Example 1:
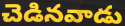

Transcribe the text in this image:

చెడినవాడు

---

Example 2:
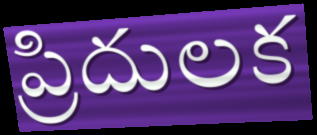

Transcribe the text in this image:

ప్రిదులక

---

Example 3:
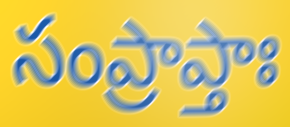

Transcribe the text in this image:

సంప్రాప్తాః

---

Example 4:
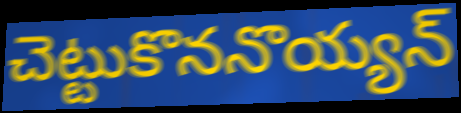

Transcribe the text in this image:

చెట్టుకొననొయ్యన్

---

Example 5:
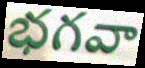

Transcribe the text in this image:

భగవా